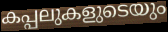
കപ്പലുകളുടെയും